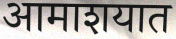
आमाशयात